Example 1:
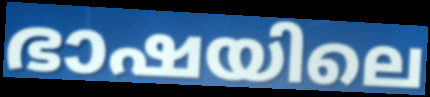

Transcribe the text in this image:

ഭാഷയിലെ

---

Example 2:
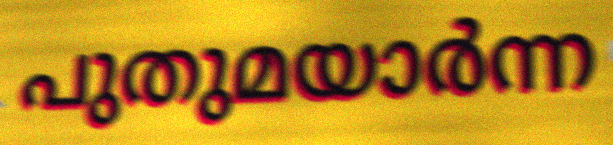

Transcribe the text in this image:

പുതുമയാർന്ന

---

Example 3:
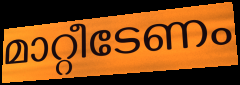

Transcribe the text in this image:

മാറ്റീടേണം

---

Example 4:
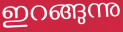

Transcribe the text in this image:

ഇറങ്ങുന്നു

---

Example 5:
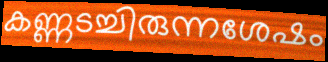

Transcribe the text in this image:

കണ്ണടച്ചിരുന്നശേഷം